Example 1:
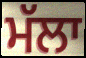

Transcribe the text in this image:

ਮੱਲਾ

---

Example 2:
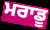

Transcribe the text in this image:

ਮਰਾਡੂ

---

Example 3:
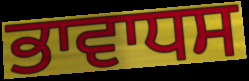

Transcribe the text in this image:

ਭਾਵਾਧਸ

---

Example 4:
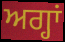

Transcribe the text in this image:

ਅਗ੍ਹਾਂ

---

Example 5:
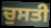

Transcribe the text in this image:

ਚੁਸਤੀ